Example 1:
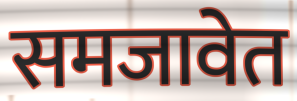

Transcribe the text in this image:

समजावेत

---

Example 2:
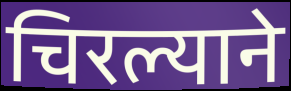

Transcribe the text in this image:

चिरल्याने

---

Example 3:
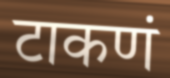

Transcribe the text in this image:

टाकणं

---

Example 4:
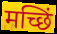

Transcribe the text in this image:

मच्छिं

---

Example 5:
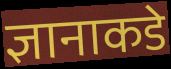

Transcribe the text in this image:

ज्ञानाकडे